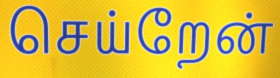
செய்றேன்